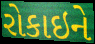
રોકાઇને